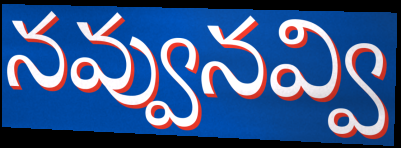
నవ్వునవ్వి